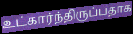
உட்கார்ந்திருப்பதாக